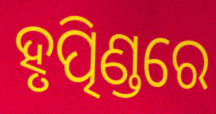
ହୃତ୍ପିଣ୍ଡରେ